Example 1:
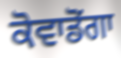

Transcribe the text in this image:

ਕੋਵਾਡੋਂਗਾ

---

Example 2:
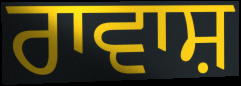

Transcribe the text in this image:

ਰਾਵਾਸ਼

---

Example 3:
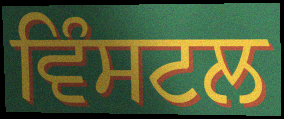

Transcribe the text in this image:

ਵਿੰਸਟਲ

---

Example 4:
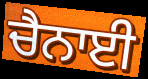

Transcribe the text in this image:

ਚੈਨਾਈ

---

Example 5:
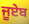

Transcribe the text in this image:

ਜੂਏਬ